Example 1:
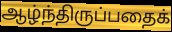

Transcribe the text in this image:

ஆழ்ந்திருப்பதைக்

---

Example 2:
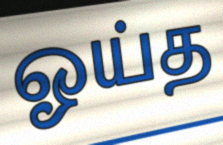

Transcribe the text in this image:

ஓய்த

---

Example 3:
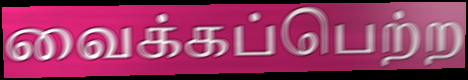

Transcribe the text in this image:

வைக்கப்பெற்ற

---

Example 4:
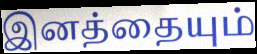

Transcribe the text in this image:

இனத்தையும்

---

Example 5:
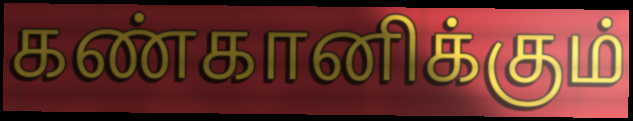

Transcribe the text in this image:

கண்கானிக்கும்